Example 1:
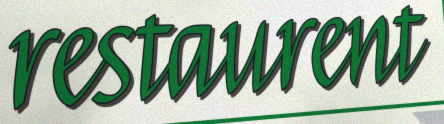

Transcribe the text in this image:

restaurent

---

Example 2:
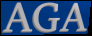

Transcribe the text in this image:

AGA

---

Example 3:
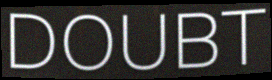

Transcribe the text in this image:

DOUBT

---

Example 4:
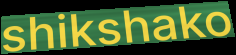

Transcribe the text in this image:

shikshako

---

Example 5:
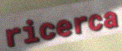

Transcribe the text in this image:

ricerca